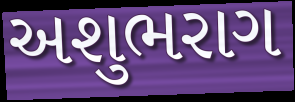
અશુભરાગ